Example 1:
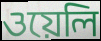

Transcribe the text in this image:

ওয়েলি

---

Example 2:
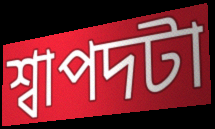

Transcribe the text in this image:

শ্বাপদটা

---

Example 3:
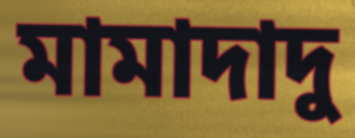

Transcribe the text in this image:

মামাদাদু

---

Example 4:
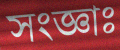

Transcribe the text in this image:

সংজ্ঞাঃ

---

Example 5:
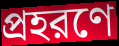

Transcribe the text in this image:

প্রহরণে